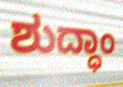
ಶುದ್ಧಾಂ